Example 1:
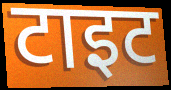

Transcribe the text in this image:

टाइट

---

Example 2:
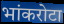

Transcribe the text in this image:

भांकरोटा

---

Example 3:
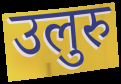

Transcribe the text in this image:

उलुरु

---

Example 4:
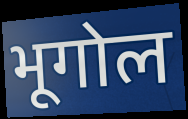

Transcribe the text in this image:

भूगोल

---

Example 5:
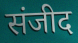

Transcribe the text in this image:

संजीद